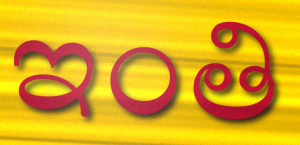
ఇంతి